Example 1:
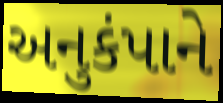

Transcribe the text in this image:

અનુકંપાને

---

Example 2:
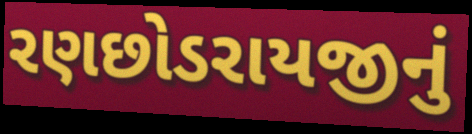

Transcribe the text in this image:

રણછોડરાયજીનું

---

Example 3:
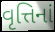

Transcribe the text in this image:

વૃત્તિનાં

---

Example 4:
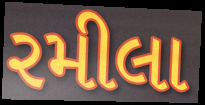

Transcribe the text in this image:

રમીલા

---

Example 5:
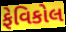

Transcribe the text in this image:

ફેવિકોલ